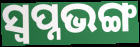
ସ୍ୱପ୍ନଭଙ୍ଗ